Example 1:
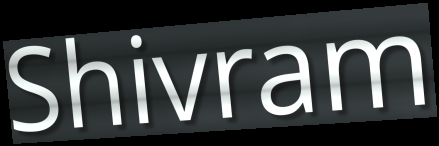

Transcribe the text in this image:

Shivram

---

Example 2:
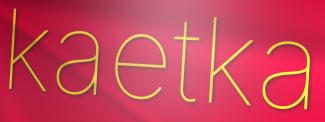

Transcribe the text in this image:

kaetka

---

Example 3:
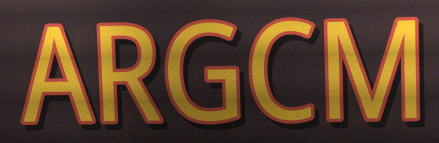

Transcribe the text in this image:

ARGCM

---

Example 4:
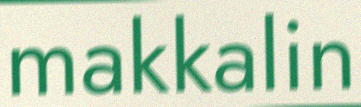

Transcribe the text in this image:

makkalin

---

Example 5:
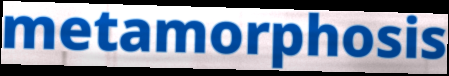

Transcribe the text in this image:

metamorphosis